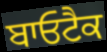
ਬਾਓਟੈਕ